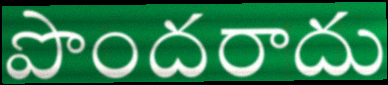
పొందరాదు